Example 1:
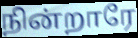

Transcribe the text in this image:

நின்றாரே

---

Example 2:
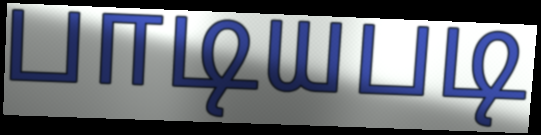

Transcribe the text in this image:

பாடியபடி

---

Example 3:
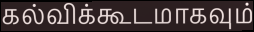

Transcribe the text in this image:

கல்விக்கூடமாகவும்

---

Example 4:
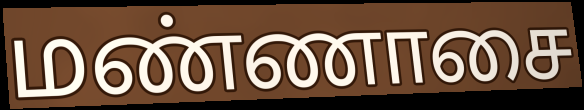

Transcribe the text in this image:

மண்ணாசை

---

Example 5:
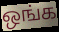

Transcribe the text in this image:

ஒங்க